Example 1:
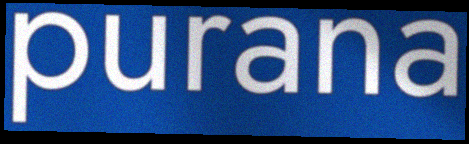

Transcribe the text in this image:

purana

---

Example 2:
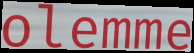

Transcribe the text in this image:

olemme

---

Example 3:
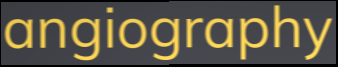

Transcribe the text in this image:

angiography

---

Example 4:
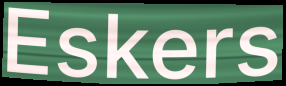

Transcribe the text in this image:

Eskers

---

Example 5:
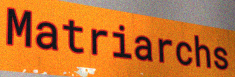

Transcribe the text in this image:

Matriarchs